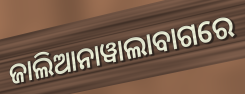
ଜାଲିଆନାୱାଲାବାଗରେ